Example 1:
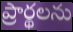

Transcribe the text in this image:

ప్రార్థలను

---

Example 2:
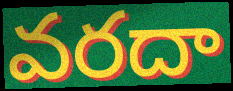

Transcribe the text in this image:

వరదా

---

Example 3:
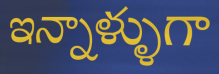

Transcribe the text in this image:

ఇన్నాళ్ళుగా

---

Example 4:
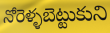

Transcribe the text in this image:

నోరెళ్ళబెట్టుకుని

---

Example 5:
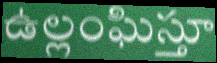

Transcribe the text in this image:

ఉల్లంఘిస్తూ